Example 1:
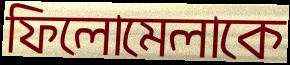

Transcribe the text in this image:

ফিলোমেলাকে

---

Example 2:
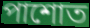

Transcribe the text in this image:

পাশোত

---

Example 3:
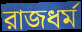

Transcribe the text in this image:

রাজধর্ম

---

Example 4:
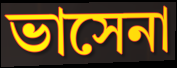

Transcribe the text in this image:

ভাসেনা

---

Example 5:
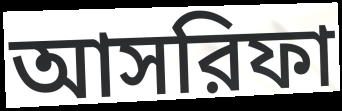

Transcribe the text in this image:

আসরিফা